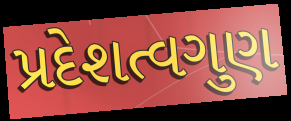
પ્રદેશત્વગુણ